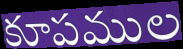
కూపముల